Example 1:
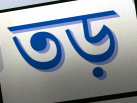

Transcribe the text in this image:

তড়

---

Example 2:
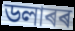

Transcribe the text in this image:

ডলাৰৰ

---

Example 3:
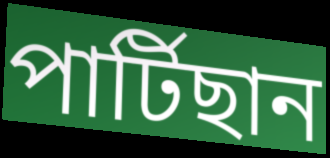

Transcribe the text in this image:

পাৰ্টিছান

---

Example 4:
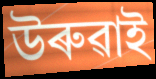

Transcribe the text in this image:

উৰুৱাই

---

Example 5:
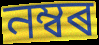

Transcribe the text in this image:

নম্বৰ